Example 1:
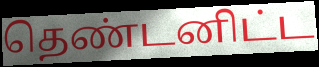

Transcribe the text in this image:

தெண்டனிட்ட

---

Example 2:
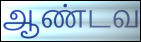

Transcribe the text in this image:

ஆண்டவ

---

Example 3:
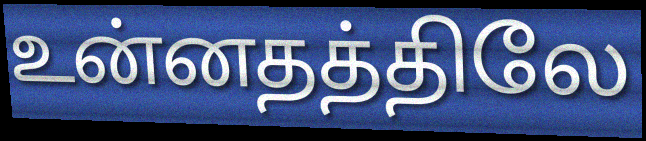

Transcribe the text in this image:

உன்னதத்திலே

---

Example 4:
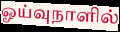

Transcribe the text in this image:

ஓய்வுநாளில்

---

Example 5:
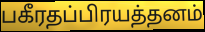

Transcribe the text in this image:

பகீரதப்பிரயத்தனம்